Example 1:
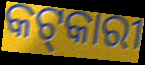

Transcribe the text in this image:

କଟ୍‌କାରୀ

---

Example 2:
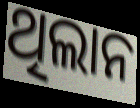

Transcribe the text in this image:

ଥିଲାନ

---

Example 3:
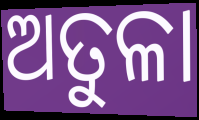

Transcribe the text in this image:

ଅତୁଳା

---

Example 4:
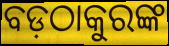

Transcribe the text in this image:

ବଡ଼ଠାକୁରଙ୍କ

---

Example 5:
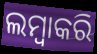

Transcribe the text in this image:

ଲମ୍ବାକରି